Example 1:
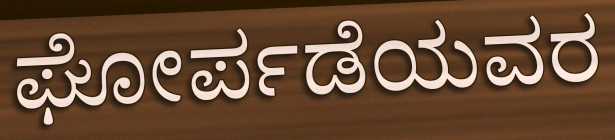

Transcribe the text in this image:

ಘೋರ್ಪಡೆಯವರ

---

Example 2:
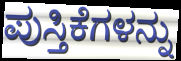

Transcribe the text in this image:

ಪುಸ್ತಿಕೆಗಳನ್ನು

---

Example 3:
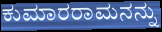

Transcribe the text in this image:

ಕುಮಾರರಾಮನನ್ನು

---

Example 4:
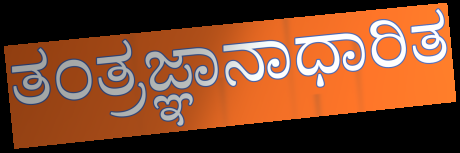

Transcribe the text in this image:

ತಂತ್ರಜ್ಞಾನಾಧಾರಿತ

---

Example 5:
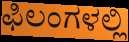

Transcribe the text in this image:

ಫಿಲಂಗಳಲ್ಲಿ